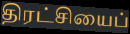
திரட்சியைப்